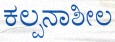
ಕಲ್ಪನಾಶೀಲ